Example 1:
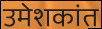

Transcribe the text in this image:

उमेशकांत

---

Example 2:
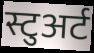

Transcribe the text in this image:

स्टुअर्ट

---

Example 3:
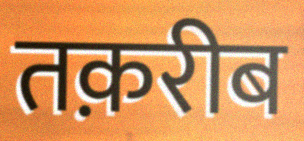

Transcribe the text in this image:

तक़रीब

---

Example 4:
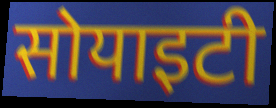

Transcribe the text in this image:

सोयाइटी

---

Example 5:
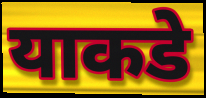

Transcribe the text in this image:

याकडे